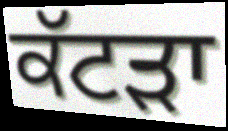
ਕੱਟੜਾ